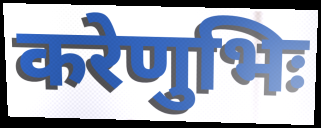
करेणुभिः